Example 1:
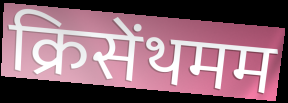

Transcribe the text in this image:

क्रिसेंथमम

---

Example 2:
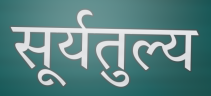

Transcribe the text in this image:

सूर्यतुल्य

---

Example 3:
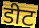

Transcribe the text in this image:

डीट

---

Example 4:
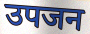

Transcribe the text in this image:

उपजन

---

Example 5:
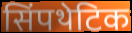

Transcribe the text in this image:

सिंपथेटिक